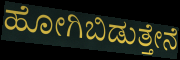
ಹೋಗಿಬಿಡುತ್ತೇನೆ